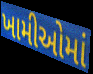
ખામીઓમાં